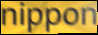
nippon